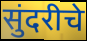
सुंदरीचे